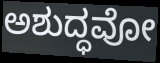
ಅಶುದ್ಧವೋ